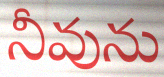
నీవును